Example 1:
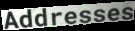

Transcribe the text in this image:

Addresses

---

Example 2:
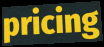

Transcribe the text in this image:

pricing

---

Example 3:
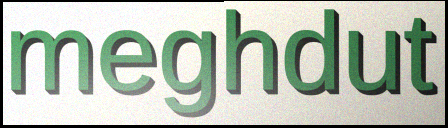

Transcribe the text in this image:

meghdut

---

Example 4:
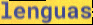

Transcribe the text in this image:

lenguas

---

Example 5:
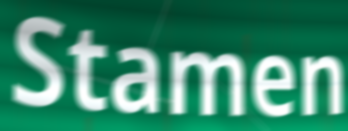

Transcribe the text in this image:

Stamen